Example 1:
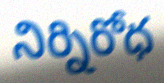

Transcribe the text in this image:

నిర్నిరోధ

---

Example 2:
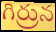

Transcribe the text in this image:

గిర్రున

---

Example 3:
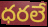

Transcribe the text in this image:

ధరలే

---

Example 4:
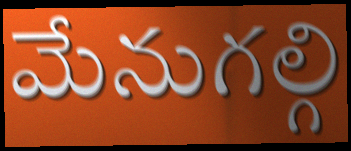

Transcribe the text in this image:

మేనుగల్గి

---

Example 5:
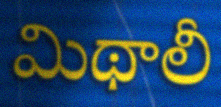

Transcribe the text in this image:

మిథాలీ